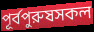
পূৰ্বপুৰুষসকল